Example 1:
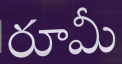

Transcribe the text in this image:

రూమీ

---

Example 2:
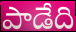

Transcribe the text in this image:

పాడేది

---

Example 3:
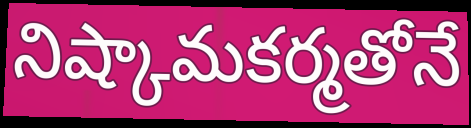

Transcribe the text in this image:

నిష్కామకర్మతోనే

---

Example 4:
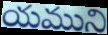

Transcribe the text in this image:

యముని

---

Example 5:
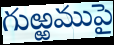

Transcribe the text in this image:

గుఱ్ఱముపై